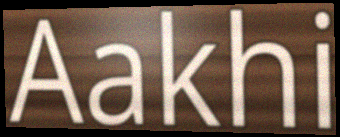
Aakhi